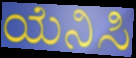
ಯೆನಿಸಿ